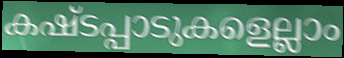
കഷ്ടപ്പാടുകളെല്ലാം